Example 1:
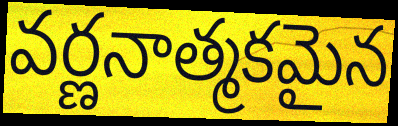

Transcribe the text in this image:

వర్ణనాత్మకమైన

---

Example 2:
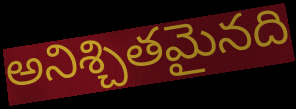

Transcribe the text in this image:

అనిశ్చితమైనది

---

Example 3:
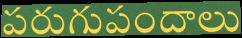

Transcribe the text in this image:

పరుగుపందాలు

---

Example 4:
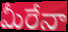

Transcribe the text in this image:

మీరేనా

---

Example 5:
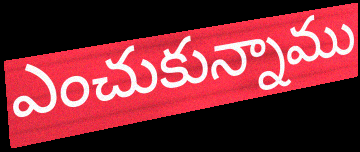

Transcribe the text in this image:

ఎంచుకున్నాము